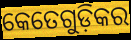
କେତେଗୁଡ଼ିକର